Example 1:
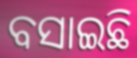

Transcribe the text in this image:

ବସାଇଛି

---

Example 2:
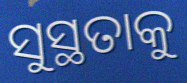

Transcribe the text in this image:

ସୁସ୍ଥତାକୁ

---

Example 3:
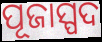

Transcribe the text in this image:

ପୂଜାସ୍ପଦ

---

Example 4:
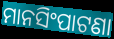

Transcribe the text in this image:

ମାନସିଂପାଟଣା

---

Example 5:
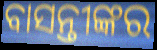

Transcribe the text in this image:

ବାସନ୍ତୀଙ୍କର